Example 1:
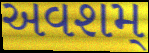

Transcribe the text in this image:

અવશમ્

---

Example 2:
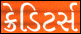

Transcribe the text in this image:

ક્રેડિટર્સ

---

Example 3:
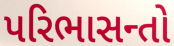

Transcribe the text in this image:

પરિભાસન્તો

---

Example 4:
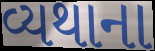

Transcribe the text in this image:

વ્યથાના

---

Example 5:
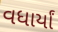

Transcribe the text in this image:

વધાર્યાં